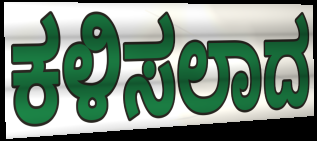
ಕಳಿಸಲಾದ